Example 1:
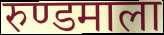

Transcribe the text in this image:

रुण्डमाला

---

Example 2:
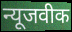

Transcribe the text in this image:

न्यूजवीक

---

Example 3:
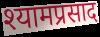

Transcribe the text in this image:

श्यामप्रसाद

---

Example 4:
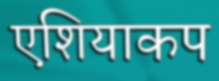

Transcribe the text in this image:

एशियाकप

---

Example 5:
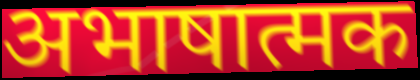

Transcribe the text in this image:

अभाषात्मक